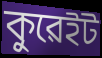
কুৱেইট